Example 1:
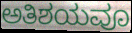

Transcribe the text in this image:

ಅತಿಶಯವೂ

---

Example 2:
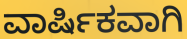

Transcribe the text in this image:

ವಾರ್ಷಿಕವಾಗಿ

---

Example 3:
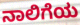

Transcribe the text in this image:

ನಾಲಿಗೆಯ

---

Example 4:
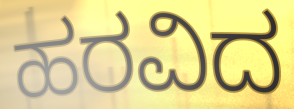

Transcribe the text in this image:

ಹರವಿದ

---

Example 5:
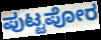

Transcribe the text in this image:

ಪುಟ್ಟಪೋರ